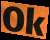
Ok